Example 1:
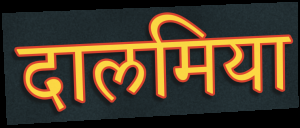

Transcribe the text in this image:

दालमिया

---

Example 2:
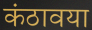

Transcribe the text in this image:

कंठावया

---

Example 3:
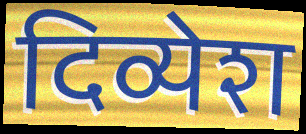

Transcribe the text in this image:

दिव्येश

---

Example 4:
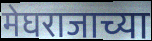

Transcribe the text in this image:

मेघराजाच्या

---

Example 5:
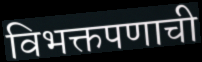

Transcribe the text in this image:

विभक्तपणाची